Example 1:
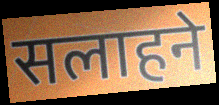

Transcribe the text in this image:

सलाहने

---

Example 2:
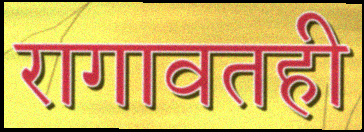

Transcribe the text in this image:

रागावतही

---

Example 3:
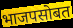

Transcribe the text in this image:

भाजपसोबत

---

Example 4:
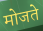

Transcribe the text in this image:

मोजते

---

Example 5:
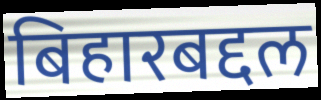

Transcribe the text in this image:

बिहारबद्दल